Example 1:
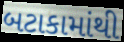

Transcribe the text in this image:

બટાકામાંથી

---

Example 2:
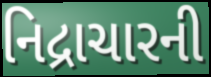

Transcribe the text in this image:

નિદ્રાચારની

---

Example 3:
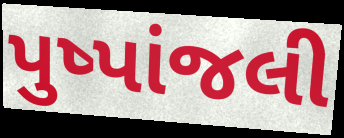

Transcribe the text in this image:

પુષ્પાંજલી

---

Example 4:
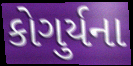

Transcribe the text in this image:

કોગુર્યના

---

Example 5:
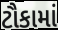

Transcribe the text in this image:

ટૌકામાં